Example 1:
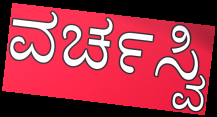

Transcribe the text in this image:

ವರ್ಚಸ್ವಿ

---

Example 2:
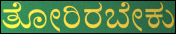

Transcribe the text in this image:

ತೋರಿರಬೇಕು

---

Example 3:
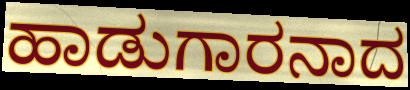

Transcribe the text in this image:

ಹಾಡುಗಾರನಾದ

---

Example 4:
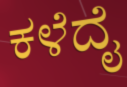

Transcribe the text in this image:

ಕಳೆದೈ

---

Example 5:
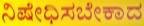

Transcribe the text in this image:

ನಿಷೇಧಿಸಬೇಕಾದ